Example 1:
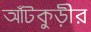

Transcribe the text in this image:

আঁটকুড়ীর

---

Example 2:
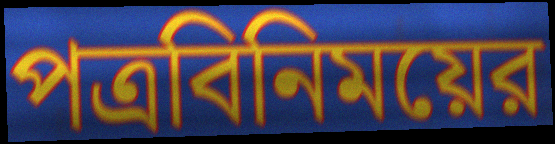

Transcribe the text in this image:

পত্রবিনিময়ের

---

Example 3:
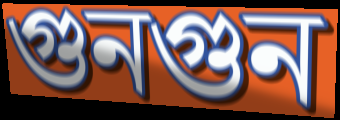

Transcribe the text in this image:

গুনগুন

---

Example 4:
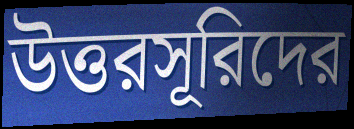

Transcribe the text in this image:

উত্তরসূরিদের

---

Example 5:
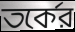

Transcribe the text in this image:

তর্কের